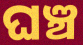
ଘଞ୍ଚ